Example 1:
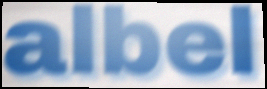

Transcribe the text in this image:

albel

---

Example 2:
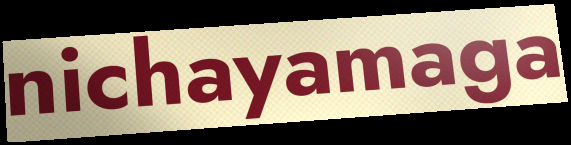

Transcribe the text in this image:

nichayamaga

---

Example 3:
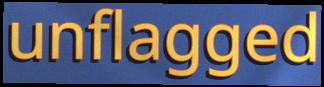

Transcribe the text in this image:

unflagged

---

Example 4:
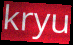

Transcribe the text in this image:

kryu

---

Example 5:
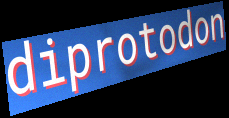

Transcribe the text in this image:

diprotodon